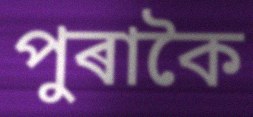
পুৰাকৈ